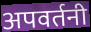
अपवर्तनी